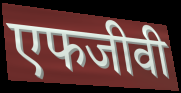
एफजीवी